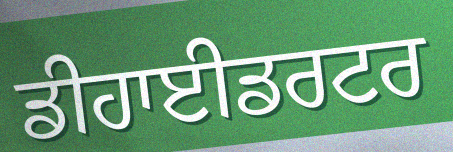
ਡੀਹਾਈਡਰਟਰ